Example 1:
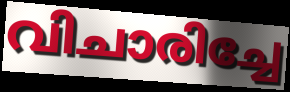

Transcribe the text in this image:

വിചാരിച്ചേ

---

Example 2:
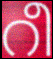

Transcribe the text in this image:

റീ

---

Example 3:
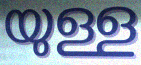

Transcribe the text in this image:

യുള്ള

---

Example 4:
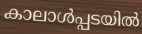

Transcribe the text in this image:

കാലാൾപ്പടയിൽ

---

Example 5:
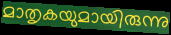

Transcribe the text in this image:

മാതൃകയുമായിരുന്നു